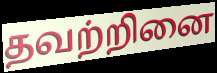
தவற்றினை